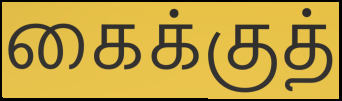
கைக்குத்